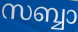
സബ്ബാ